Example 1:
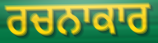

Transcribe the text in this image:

ਰਚਨਾਕਾਰ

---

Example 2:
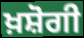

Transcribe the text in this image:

ਖ਼ਸ਼ੋਗੀ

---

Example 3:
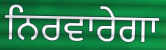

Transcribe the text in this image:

ਨਿਰਵਾਰੇਗਾ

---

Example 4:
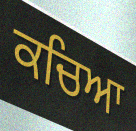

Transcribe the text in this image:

ਕਚਿਆ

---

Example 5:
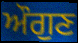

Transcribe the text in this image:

ਔਗੁਣ